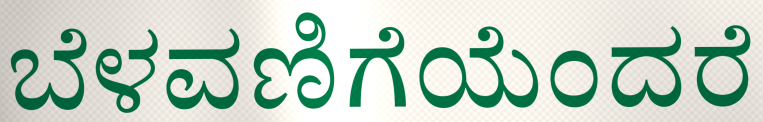
ಬೆಳವಣಿಗೆಯೆಂದರೆ